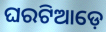
ଘରଟିଆଡ଼େ